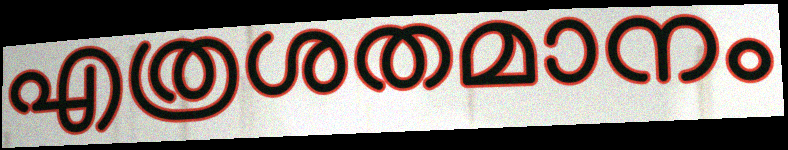
എത്രശതമാനം